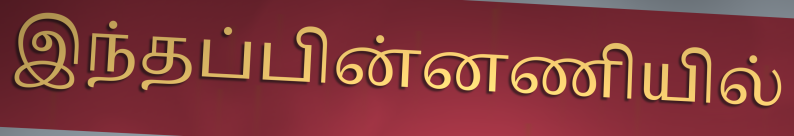
இந்தப்பின்னணியில்